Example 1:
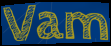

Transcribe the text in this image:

Vam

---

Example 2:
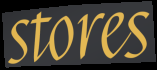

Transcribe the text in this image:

stores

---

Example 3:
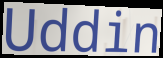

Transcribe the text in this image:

Uddin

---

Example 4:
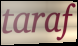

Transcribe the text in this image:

taraf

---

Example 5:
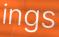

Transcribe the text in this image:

ings